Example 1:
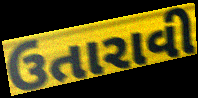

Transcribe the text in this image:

ઉતારાવી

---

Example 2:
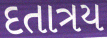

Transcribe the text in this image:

દતાત્રય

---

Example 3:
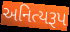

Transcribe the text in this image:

અનિત્યરૂપ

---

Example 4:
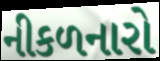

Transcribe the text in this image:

નીકળનારો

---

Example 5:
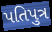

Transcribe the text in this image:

પતિપુત્ર